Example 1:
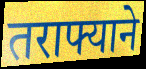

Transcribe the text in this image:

तराफ्याने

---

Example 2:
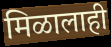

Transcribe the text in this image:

मिळालाही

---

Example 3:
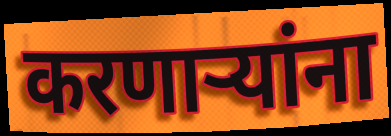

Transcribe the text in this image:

करणार्‍यांना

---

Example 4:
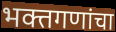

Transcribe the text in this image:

भक्तगणांचा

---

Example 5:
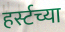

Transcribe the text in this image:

हर्स्टच्या